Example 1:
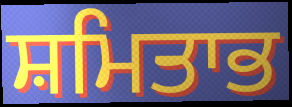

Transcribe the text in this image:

ਸ਼ਮਿਤਾਭ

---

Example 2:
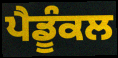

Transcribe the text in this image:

ਪੈਡੂੰਕਲ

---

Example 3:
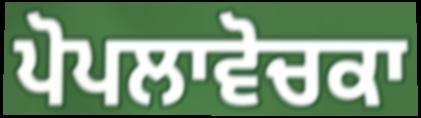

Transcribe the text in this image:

ਪੋਪਲਾਵੋਚਕਾ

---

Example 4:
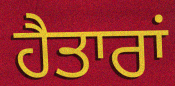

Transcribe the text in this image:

ਹੈਤਾਰਾਂ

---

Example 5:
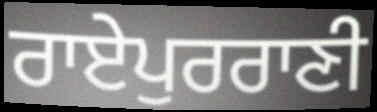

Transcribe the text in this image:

ਰਾਏਪੁਰਰਾਣੀ